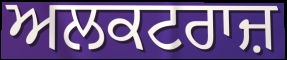
ਅਲਕਟਰਾਜ਼